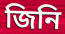
জিনি